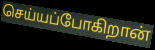
செய்யப்போகிறான்